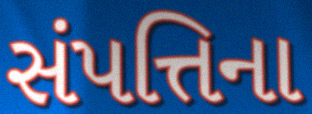
સંપત્તિના